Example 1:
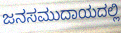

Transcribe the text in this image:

ಜನಸಮುದಾಯದಲ್ಲಿ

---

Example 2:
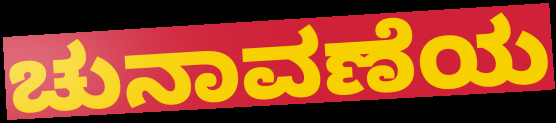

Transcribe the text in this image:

ಚುನಾವಣೆಯ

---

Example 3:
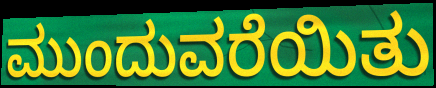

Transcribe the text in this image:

ಮುಂದುವರೆಯಿತು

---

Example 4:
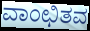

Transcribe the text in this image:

ವಾಂಛಿತವ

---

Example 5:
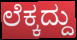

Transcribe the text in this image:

ಲೆಕ್ಕದ್ದು